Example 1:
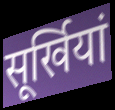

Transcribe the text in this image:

सूर्खियां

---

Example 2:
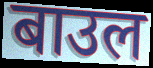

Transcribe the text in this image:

बाउल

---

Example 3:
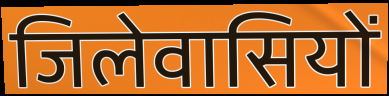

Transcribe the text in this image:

जिलेवासियों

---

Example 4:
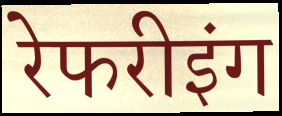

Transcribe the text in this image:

रेफरीइंग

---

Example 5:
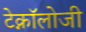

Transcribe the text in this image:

टेक्नॉलोजी